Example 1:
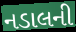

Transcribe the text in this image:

નડાલની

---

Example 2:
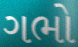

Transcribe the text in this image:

ગભો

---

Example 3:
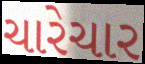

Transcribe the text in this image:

ચારેચાર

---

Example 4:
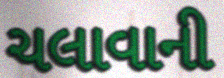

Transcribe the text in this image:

ચલાવાની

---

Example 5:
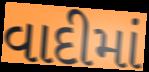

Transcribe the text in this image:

વાદીમાં